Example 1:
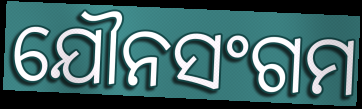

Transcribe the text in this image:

ଯୌନସଂଗମ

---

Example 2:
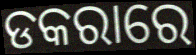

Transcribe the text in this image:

ଡକରାରେ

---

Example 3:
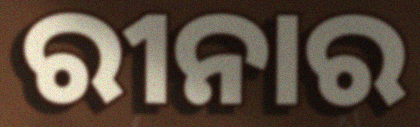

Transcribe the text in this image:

ରୀନାର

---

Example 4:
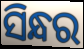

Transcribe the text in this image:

ସିନ୍ଧର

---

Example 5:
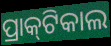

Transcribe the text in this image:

ପ୍ରାକ୍‌ଟିକାଲ